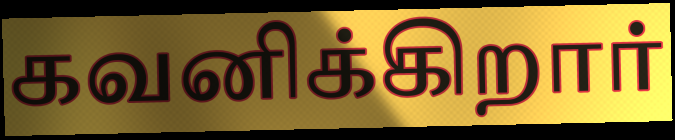
கவனிக்கிறார்